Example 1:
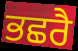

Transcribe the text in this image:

ਭਛਰੈ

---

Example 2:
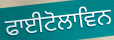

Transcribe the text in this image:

ਫਾਈਟੋਲਾਵਿਨ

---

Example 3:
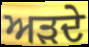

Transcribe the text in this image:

ਅੜਦੇ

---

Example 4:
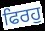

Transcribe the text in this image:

ਫਿਰਹੁ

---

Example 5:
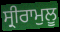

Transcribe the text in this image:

ਸ੍ਰੀਰਾਮੁਲੂ